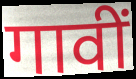
गावीं